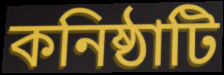
কনিষ্ঠাটি